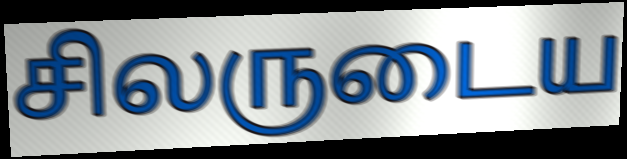
சிலருடைய